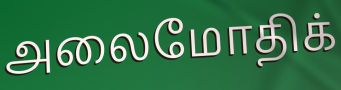
அலைமோதிக்